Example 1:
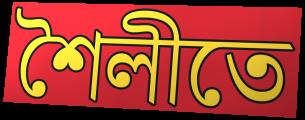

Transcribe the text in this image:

শৈলীতে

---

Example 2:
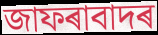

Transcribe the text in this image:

জাফৰাবাদৰ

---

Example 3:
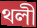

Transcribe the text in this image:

থলী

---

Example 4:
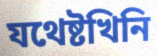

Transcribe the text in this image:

যথেষ্টখিনি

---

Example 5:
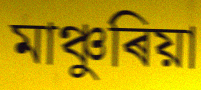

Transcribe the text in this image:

মাঞ্চুৰিয়া